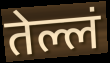
तेल्लं